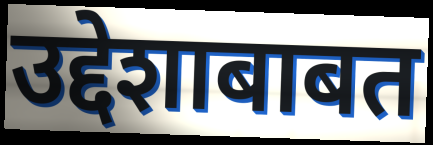
उद्देशाबाबत